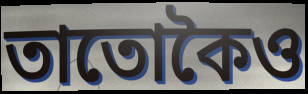
তাতোকৈও